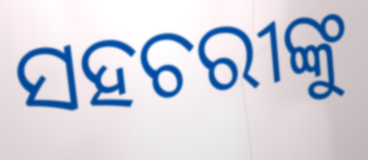
ସହଚରୀଙ୍କୁ